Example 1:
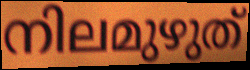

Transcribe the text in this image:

നിലമുഴുത്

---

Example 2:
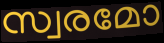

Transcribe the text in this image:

സ്വരമോ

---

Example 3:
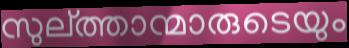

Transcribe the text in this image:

സുല്ത്താന്മാരുടെയും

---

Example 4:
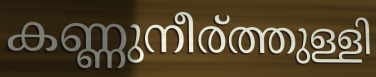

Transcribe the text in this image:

കണ്ണുനീര്ത്തുള്ളി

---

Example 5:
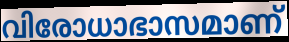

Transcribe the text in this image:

വിരോധാഭാസമാണ്